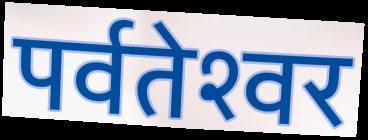
पर्वतेश्वर